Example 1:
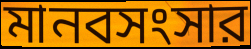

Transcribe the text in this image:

মানবসংসার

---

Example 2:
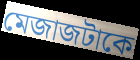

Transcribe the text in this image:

মেজাজটাকে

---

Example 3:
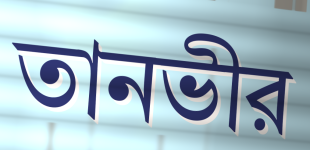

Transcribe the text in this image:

তানভীর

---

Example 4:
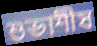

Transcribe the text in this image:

শুভাশীষ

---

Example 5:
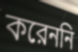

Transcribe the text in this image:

করেননি